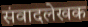
संवादलेखक